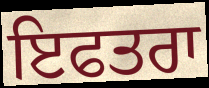
ਇਫਤਰਾ